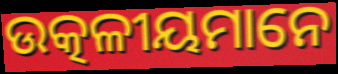
ଉତ୍କଳୀୟମାନେ